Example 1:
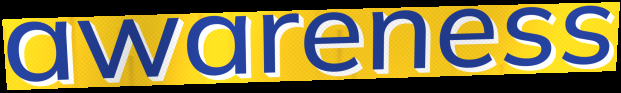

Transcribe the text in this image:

awareness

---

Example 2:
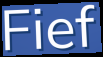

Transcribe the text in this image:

Fief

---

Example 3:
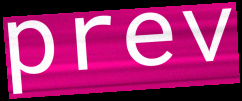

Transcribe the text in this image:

prev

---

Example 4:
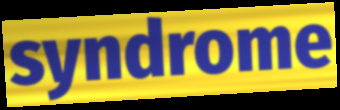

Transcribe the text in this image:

syndrome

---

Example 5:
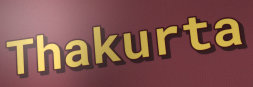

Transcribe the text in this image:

Thakurta